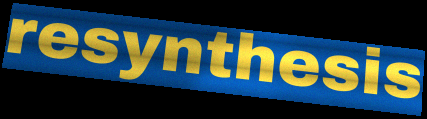
resynthesis